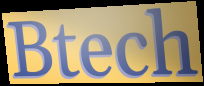
Btech